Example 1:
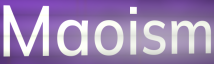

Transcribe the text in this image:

Maoism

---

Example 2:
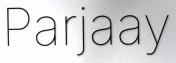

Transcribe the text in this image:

Parjaay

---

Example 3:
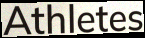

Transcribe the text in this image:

Athletes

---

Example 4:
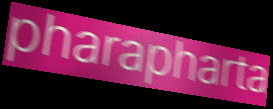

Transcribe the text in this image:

pharapharta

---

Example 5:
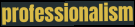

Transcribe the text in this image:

professionalism